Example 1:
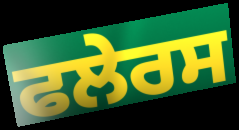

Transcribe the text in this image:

ਫਲੇਰਸ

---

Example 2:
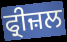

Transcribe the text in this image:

ਫ੍ਰੀਜ਼ਲ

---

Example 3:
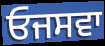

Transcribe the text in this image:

ਓਜਸਵਾ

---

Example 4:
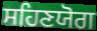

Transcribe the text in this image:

ਸਹਿਣਯੋਗ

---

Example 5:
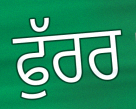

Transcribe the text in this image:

ਫੁੱਰਰ